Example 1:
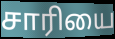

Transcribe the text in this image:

சாரியை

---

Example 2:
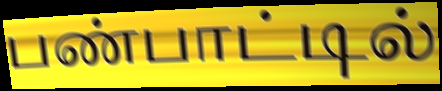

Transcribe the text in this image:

பண்பாட்டில்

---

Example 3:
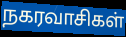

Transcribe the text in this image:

நகரவாசிகள்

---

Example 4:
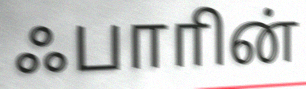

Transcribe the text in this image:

ஃபாரின்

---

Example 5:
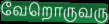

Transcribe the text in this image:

வேறொருவரு